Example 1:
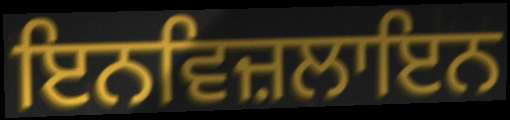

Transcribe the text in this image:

ਇਨਵਿਜ਼ਲਾਇਨ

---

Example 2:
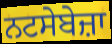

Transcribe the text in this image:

ਨਟਸੇਬੇਜ਼ਾ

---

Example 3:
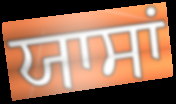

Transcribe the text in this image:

ਯਾਸਾਂ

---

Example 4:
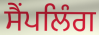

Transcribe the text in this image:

ਸੈਂਪਲਿੰਗ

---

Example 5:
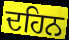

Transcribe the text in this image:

ਦਹਿਨ